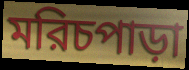
মরিচপাড়া